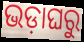
ଭଡ଼ାଘରୁ